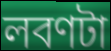
লবণটা